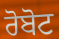
ਰੋਬੋਟ